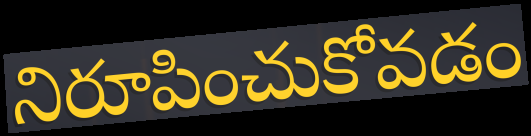
నిరూపించుకోవడం